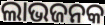
ଲାଭଜନକ